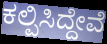
ಕಲ್ಪಿಸಿದ್ದೇವೆ